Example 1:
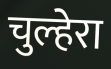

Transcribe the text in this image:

चुल्हेरा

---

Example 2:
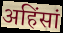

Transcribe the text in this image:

अहिंसां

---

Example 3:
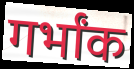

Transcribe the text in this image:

गर्भांक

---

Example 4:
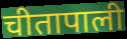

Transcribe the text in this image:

चीतापाली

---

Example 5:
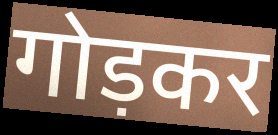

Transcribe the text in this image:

गोड़कर